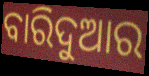
ବାରିଦୁଆର